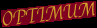
OPTIMUM